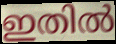
ഇതിൽ